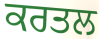
ਕਰਤਲ